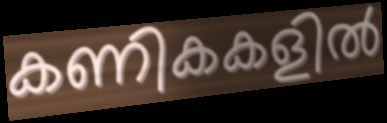
കണികകളിൽ